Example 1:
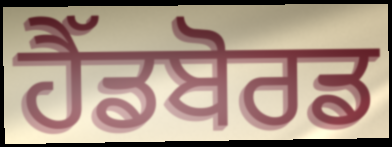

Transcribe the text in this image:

ਹੈੱਡਬੋਰਡ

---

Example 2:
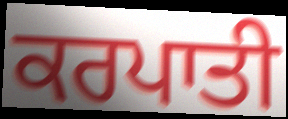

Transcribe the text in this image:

ਕਰਪਾਤੀ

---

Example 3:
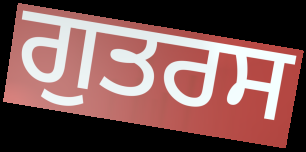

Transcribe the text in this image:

ਗੁਤਰਸ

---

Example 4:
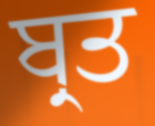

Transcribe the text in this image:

ਬ੍ਰਤ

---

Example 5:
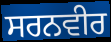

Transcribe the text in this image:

ਸਰਨਵੀਰ